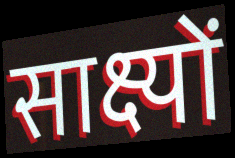
साक्ष्यों